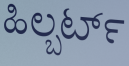
ಹಿಲ್ಬರ್ಟ್